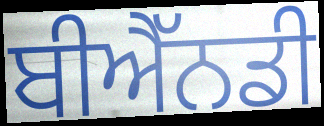
ਬੀਐੱਨਡੀ